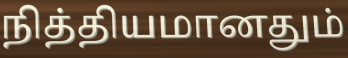
நித்தியமானதும்